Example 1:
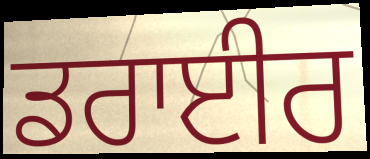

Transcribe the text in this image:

ਡਰਾਈਰ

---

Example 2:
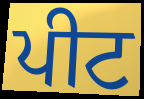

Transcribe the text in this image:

ਪੀਟ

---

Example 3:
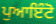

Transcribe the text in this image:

ਪੁਆਇੰਟੋ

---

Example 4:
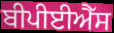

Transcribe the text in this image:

ਬੀਪੀਈਐੱਸ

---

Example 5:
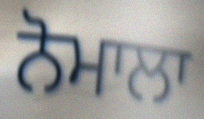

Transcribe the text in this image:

ਨੋਮਾਲਾ